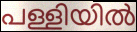
പള്ളിയിൽ